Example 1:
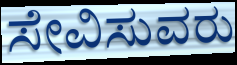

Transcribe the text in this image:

ಸೇವಿಸುವರು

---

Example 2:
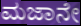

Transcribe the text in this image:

ಮಜಾನೇ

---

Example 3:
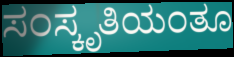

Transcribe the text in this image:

ಸಂಸ್ಕೃತಿಯಂತೂ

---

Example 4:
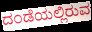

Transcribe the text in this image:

ದಂಡೆಯಲ್ಲಿರುವ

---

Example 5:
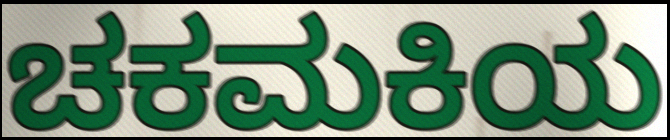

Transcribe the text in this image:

ಚಕಮಕಿಯ